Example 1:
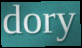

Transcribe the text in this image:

dory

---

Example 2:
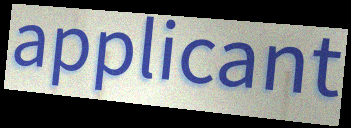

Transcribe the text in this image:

applicant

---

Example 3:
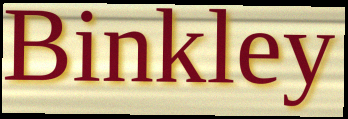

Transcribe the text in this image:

Binkley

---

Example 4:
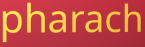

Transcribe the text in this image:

pharach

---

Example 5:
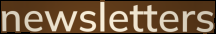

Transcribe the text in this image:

newsletters